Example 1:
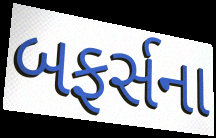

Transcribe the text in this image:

બફર્સના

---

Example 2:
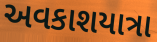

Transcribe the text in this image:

અવકાશયાત્રા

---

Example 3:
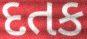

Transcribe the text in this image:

દતક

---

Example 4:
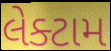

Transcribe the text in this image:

લેક્ટામ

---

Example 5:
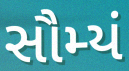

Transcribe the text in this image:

સૌમ્યં